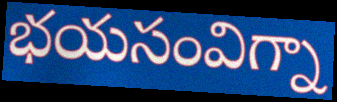
భయసంవిగ్నా